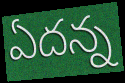
ఏదన్న